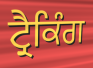
ਟ੍ਰੈਕਿੰਗ